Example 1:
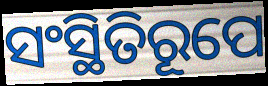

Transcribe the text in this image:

ସଂସ୍ଥିତିରୂପେ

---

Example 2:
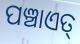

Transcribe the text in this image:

ପଞ୍ଚାଏତ୍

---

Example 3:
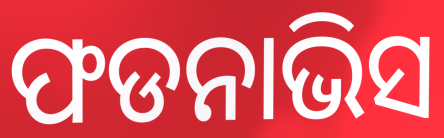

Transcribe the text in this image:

ଫଡନାଭିସ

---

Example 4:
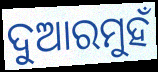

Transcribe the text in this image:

ଦୁଆରମୁହଁ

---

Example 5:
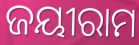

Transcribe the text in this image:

ଜୟୀରାମ